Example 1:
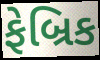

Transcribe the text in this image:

ફેબ્રિક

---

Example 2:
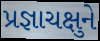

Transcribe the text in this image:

પ્રજ્ઞાચક્ષુને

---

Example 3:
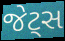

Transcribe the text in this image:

જેટ્સ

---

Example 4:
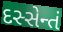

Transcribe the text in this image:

દસ્સેન્તં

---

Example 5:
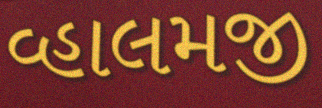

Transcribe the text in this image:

વ્હાલમજી